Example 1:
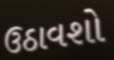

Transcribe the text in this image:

ઉઠાવશો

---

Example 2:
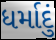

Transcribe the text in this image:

ધર્માદું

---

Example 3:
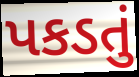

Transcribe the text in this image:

પકડતું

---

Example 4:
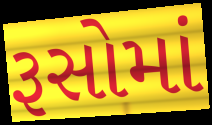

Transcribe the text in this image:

રૂસોમાં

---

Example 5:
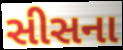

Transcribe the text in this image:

સીસના